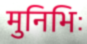
मुनिभिः